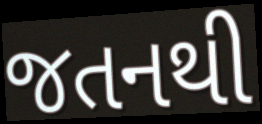
જતનથી